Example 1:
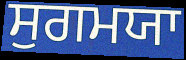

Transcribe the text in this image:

ਸੁਗਮਯਾ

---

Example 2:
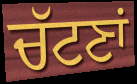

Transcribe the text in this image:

ਚੱਟਣਾਂ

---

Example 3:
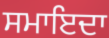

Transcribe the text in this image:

ਸਮਾਇਦਾ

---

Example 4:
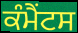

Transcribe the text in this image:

ਕੰਮੈਂਟਸ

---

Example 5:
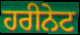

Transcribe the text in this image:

ਹਰੀਨੇਟ